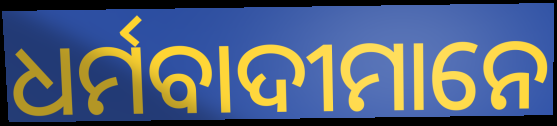
ଧର୍ମବାଦୀମାନେ